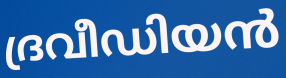
ദ്രവീഡിയൻ